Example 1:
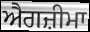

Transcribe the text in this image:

ਐਗਜ਼ੀਮਾ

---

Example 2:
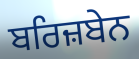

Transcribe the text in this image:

ਬਰਿਜ਼ਬੇਨ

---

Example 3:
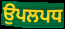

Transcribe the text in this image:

ਉਪਲਪਧ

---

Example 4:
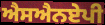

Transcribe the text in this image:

ਐਸਐਨਏਪੀ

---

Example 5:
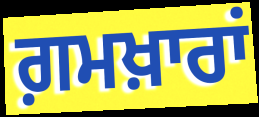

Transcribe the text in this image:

ਗ਼ਮਖ਼ਾਰਾਂ